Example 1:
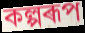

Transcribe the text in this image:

কল্পৰূপ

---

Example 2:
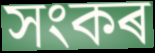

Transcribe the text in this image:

সংকৰ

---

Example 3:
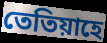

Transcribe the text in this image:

তেতিয়াহে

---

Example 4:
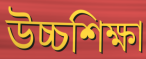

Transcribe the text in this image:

উচ্চশিক্ষা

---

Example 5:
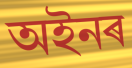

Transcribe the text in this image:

অইনৰ